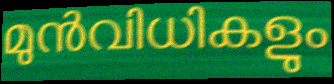
മുൻവിധികളും